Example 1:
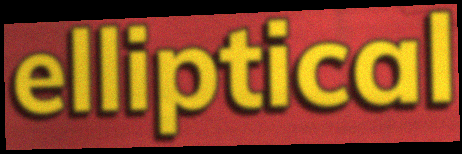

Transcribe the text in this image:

elliptical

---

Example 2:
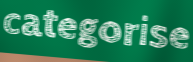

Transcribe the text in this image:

categorise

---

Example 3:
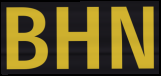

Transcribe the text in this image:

BHN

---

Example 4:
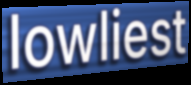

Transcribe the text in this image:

lowliest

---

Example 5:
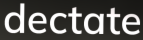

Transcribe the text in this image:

dectate